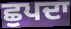
ਛੁਪਦਾ